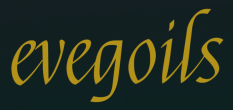
evegoils